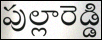
పుల్లారెడ్డి